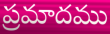
ప్రమాదము